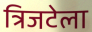
त्रिजटेला